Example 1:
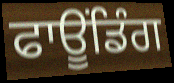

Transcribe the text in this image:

ਫਾਊਂਡਿੰਗ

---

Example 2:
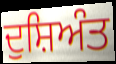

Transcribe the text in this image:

ਦੁਸ਼ਿਅੰਤ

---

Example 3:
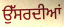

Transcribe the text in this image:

ਉੱਸਰਦੀਆਂ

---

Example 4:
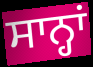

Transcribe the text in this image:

ਸਾਨ੍ਹਾਂ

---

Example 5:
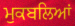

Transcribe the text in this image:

ਮੁਕਬਲਿਆਂ